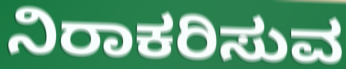
ನಿರಾಕರಿಸುವ